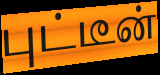
புட்டீன்